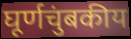
घूर्णचुंबकीय